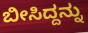
ಬೀಸಿದ್ದನ್ನು